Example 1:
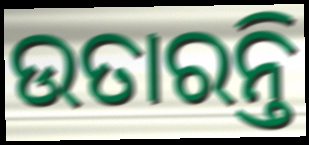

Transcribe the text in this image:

ଉତାରନ୍ତି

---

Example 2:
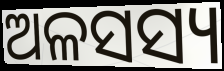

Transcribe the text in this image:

ଅଳସସ୍ୟ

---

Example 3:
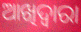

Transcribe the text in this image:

ଆଖିଦ୍ୱାରା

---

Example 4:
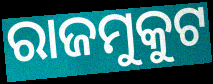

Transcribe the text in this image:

ରାଜମୁକୁଟ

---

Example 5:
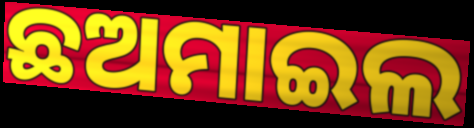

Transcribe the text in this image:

ଛଅମାଇଲ